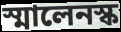
স্মালেনস্ক